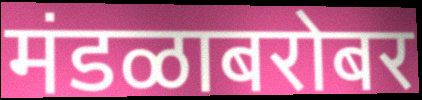
मंडळाबरोबर